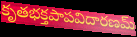
కృతభక్తపాపవిదారణమ్